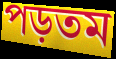
পড়তম